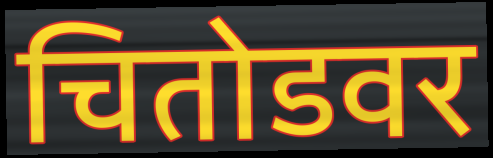
चितोडवर